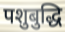
पशुबुद्धि